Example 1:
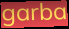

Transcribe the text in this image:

garba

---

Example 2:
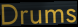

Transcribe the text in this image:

Drums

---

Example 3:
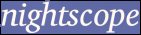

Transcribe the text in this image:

nightscope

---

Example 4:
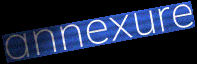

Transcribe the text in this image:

annexure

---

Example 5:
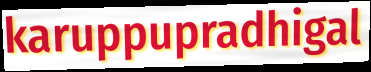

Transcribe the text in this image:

karuppupradhigal